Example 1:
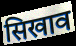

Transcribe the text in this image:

सिखाव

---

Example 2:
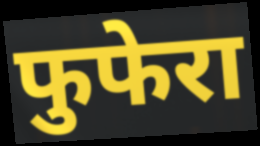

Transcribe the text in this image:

फुफेरा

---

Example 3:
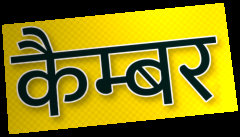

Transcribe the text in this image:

कैम्बर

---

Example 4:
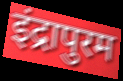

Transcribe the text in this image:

इंद्रापुरम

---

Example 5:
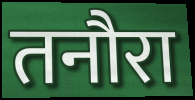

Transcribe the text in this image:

तनौरा